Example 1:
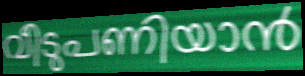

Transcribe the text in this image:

വീടുപണിയാൻ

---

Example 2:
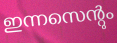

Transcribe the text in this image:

ഇന്നസെന്റും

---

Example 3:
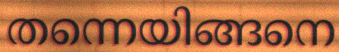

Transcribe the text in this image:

തന്നെയിങ്ങനെ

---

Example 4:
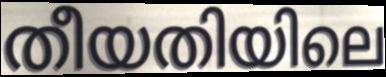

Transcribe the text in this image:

തീയതിയിലെ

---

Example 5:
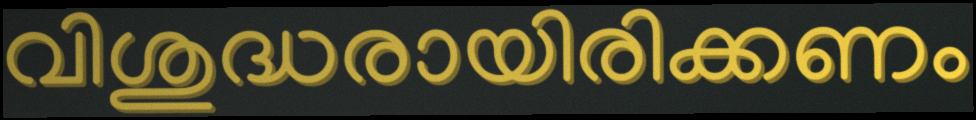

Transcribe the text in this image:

വിശുദ്ധരായിരിക്കണം